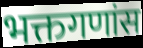
भक्तगणांस